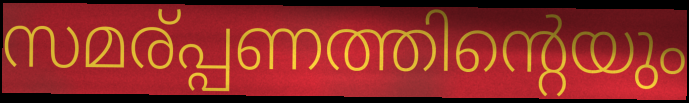
സമര്പ്പണത്തിന്റെയും